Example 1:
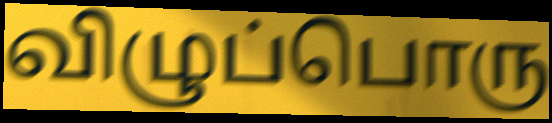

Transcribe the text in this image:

விழுப்பொரு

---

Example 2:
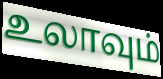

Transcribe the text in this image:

உலாவும்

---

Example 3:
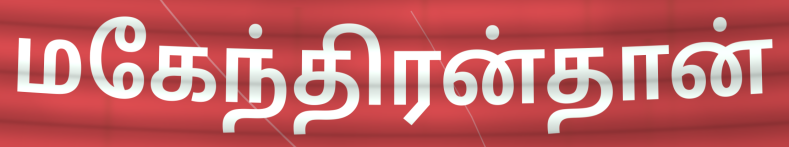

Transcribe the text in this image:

மகேந்திரன்தான்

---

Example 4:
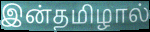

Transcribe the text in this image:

இன்தமிழால்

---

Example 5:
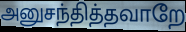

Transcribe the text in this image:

அனுசந்தித்தவாறே